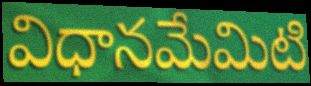
విధానమేమిటి